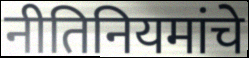
नीतिनियमांचे